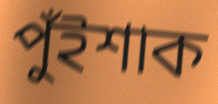
পুঁইশাক